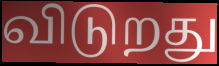
விடுறது